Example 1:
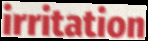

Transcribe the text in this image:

irritation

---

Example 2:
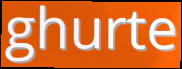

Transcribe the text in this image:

ghurte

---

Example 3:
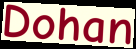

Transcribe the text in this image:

Dohan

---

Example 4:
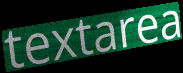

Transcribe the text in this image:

textarea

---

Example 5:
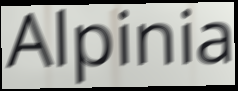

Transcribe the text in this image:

Alpinia